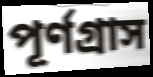
পূর্ণগ্রাস